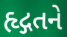
હૃદ્ગતને